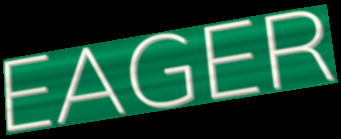
EAGER